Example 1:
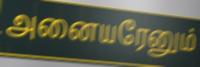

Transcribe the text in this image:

அனையரேனும்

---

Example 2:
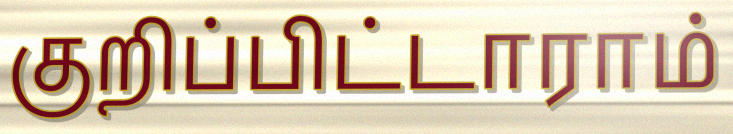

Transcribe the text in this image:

குறிப்பிட்டாராம்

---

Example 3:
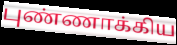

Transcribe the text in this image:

புண்ணாக்கிய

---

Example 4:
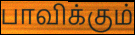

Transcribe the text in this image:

பாவிக்கும்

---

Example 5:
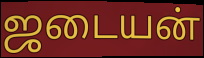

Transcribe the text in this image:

ஜடையன்